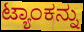
ಟ್ಯಾಂಕನ್ನು